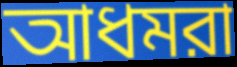
আধমরা